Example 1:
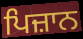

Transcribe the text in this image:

ਪਿਜ਼ਾਨ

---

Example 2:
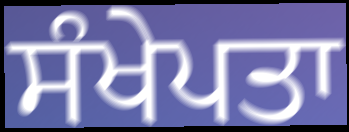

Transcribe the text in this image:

ਸੰਖੇਪਤਾ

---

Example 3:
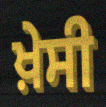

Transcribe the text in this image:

ਖ਼ੇਸੀ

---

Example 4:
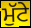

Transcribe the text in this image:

ਮੁੱਟੇ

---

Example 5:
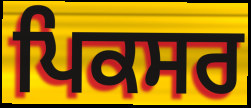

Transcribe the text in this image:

ਪਿਕਸਰ